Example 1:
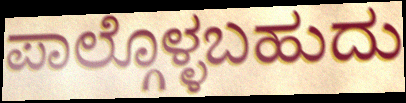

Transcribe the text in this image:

ಪಾಲ್ಗೊಳ್ಳಬಹುದು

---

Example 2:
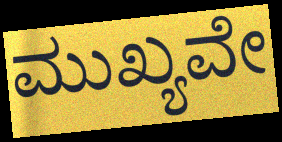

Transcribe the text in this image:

ಮುಖ್ಯವೇ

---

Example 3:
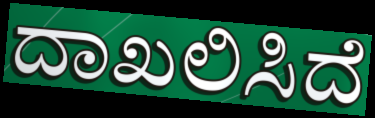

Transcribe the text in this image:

ದಾಖಲಿಸಿದೆ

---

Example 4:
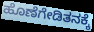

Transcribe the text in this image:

ಹೊಣೆಗೇಡಿತನಕ್ಕೆ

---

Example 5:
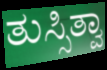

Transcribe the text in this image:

ತುಸ್ಸಿತ್ವಾ